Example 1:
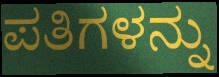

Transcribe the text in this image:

ಪತಿಗಳನ್ನು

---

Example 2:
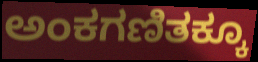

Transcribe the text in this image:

ಅಂಕಗಣಿತಕ್ಕೂ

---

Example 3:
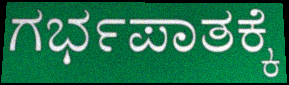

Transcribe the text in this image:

ಗರ್ಭಪಾತಕ್ಕೆ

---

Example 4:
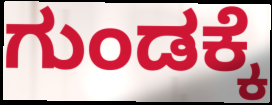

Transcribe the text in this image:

ಗುಂಡಕ್ಕೆ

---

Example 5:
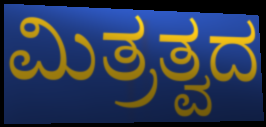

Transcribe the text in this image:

ಮಿತ್ರತ್ವದ